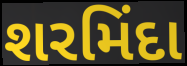
શરમિંદા